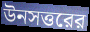
উনসত্তরের